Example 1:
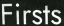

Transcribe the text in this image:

Firsts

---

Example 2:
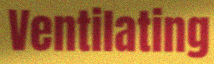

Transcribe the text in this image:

Ventilating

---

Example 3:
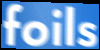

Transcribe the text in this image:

foils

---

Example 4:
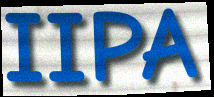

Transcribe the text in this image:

IIPA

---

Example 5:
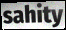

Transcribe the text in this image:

sahity